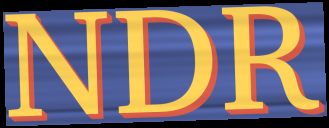
NDR